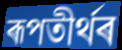
ৰূপতীৰ্থৰ